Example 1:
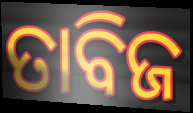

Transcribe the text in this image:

ତାବିଜ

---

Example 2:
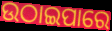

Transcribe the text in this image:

ଉଠାଇପାରେ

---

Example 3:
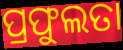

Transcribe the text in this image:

ପ୍ରଫୁଲତା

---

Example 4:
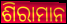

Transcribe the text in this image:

ଶିରାମାନ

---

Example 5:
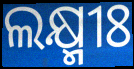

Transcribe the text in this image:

ଲକ୍ଷ୍ମୀଃ